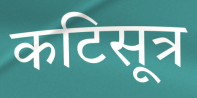
कटिसूत्र